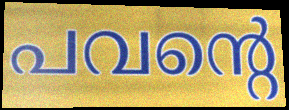
പവന്റെ